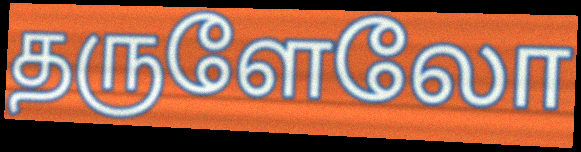
தருளேலோ